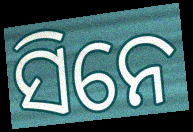
ସିନେ